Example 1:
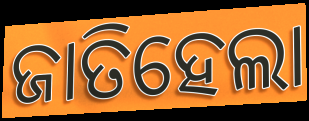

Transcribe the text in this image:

ଜାତିହେଲା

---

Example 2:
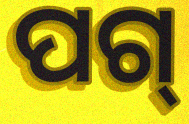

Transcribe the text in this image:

ପଗ୍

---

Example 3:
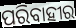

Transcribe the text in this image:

ପରିବାହୀର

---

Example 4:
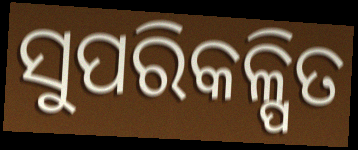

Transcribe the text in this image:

ସୁପରିକଳ୍ପିତ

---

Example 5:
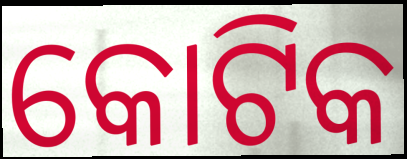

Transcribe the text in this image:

କୋଟିକ